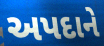
અપદાને